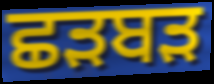
ਛੜਬੜ